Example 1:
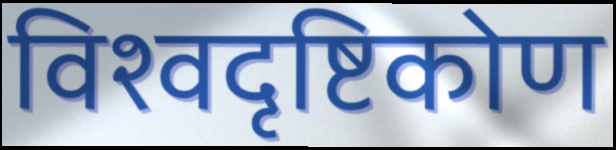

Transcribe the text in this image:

विश्वदृष्टिकोण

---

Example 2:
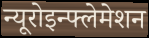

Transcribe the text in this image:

न्यूरोइन्फ्लेमेशन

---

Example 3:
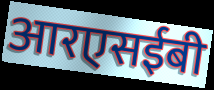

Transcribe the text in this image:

आरएसईबी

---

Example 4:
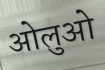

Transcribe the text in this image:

ओलुओ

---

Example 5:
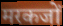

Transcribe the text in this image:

मरकजों